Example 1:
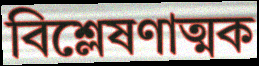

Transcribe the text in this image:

বিশ্লেষণাত্মক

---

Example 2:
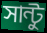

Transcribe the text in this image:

সান্টু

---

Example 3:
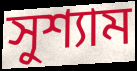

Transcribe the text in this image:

সুশ্যাম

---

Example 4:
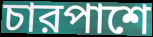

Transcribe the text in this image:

চারপাশে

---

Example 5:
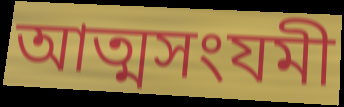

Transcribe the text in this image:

আত্মসংযমী